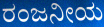
ರಂಜನೀಯ